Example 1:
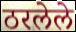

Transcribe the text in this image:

ठरलेले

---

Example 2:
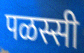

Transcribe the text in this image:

पळस्सी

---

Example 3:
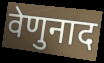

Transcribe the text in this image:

वेणुनाद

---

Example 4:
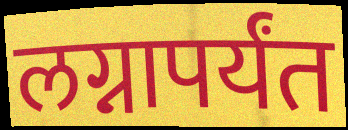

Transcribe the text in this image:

लग्नापर्यंत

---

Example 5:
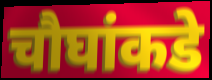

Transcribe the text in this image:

चौघांकडे